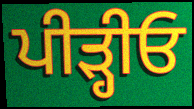
ਪੀੜ੍ਹੀਓ